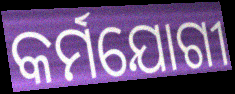
କର୍ମଯୋଗୀ